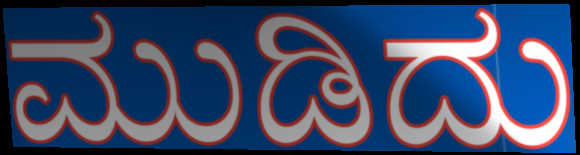
ಮುಡಿದು